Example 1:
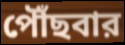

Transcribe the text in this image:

পৌঁছবার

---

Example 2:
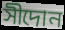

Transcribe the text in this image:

সীদোন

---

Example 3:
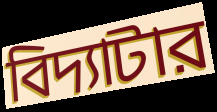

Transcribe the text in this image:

বিদ্যাটার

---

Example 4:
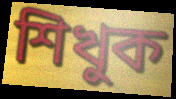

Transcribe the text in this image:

শিখুক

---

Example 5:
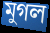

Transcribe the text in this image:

মুগল